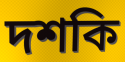
দশকি